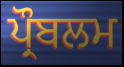
ਪ੍ਰੌਬਲਮ